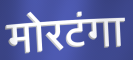
मोरटंगा